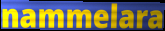
nammelara